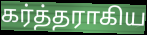
கர்த்தராகிய